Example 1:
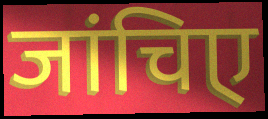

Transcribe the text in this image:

जांचिए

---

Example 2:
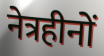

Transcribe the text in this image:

नेत्रहीनों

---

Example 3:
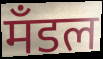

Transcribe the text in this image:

मँडल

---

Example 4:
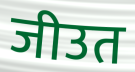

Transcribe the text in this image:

जीउत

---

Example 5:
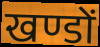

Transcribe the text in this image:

खण्डों